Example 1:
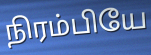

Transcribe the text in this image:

நிரம்பியே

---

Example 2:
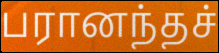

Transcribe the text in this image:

பரானந்தச்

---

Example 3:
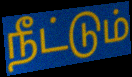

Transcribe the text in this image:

நீட்டும்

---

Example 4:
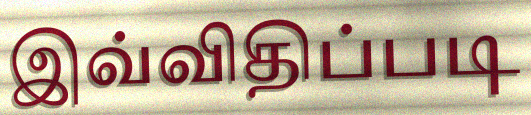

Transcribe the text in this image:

இவ்விதிப்படி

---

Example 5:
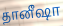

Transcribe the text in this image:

தானீஷா